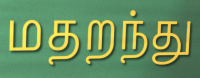
மதறந்து